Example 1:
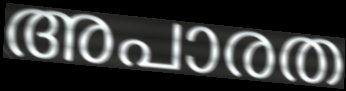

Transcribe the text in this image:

അപാരത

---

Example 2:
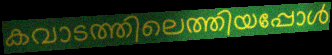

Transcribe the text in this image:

കവാടത്തിലെത്തിയപ്പോൾ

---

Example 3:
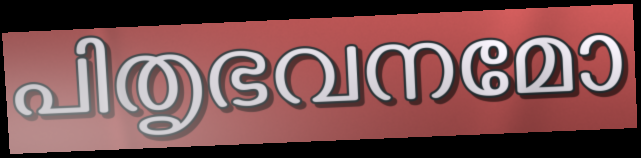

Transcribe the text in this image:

പിതൃഭവനമോ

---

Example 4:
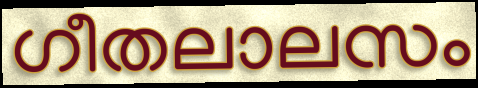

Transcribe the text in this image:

ഗീതലാലസം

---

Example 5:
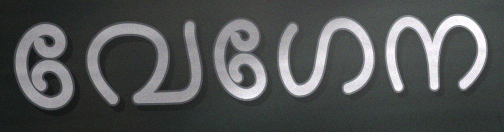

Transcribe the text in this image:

വേഗേന